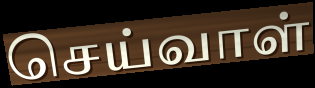
செய்வாள்